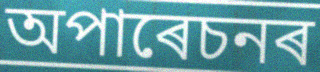
অপাৰেচনৰ